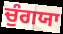
ਚੁੰਗਯਾ